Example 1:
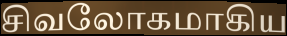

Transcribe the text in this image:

சிவலோகமாகிய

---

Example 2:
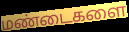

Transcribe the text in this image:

மண்டைகளை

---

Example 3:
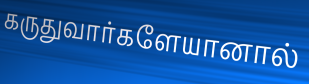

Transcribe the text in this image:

கருதுவார்களேயானால்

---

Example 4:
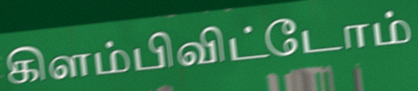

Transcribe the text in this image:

கிளம்பிவிட்டோம்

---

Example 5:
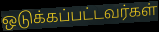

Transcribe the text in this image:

ஒடுக்கப்பட்டவர்கள்